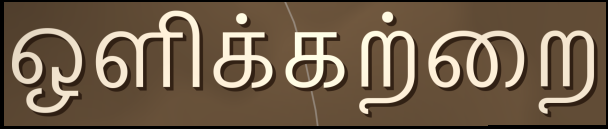
ஒளிக்கற்றை